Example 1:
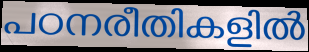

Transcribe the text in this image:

പഠനരീതികളിൽ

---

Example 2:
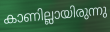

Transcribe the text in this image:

കാണില്ലായിരുന്നു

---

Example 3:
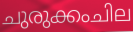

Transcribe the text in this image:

ചുരുക്കംചില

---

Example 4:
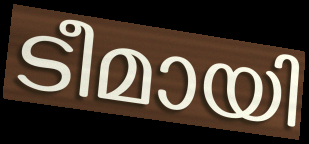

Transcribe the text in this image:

ടീമായി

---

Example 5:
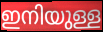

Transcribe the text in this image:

ഇനിയുള്ള